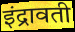
इंद्रावती